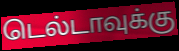
டெல்டாவுக்கு